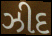
ઝીદ